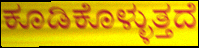
ಕೂಡಿಕೊಳ್ಳುತ್ತದೆ